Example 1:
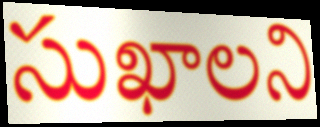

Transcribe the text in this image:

సుఖాలని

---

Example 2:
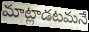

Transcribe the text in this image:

మాట్లాడటమనే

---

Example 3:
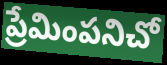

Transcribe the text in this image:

ప్రేమింపనిచో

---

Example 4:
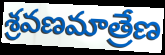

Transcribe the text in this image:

శ్రవణమాత్రేణ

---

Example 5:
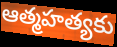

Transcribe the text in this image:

ఆత్మహత్యకు